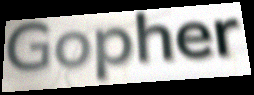
Gopher